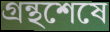
গ্রন্থশেষে